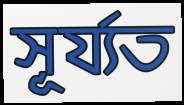
সূৰ্য্যত